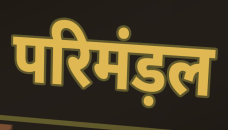
परिमंड़ल